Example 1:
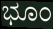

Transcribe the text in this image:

ಭೂಂ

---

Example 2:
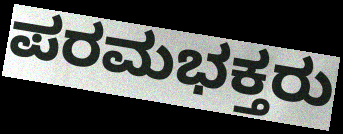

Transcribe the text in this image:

ಪರಮಭಕ್ತರು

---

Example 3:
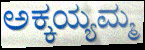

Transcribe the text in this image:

ಅಕ್ಕಯ್ಯಮ್ಮ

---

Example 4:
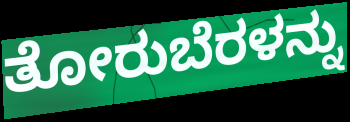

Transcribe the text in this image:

ತೋರುಬೆರಳನ್ನು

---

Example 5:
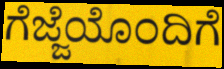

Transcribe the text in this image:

ಗೆಜ್ಜೆಯೊಂದಿಗೆ